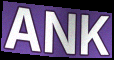
ANK